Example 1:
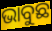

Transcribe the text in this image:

ଭାବୁଛ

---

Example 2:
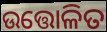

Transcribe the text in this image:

ଉତ୍ତୋଳିତ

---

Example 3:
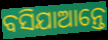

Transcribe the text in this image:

ବସିଯାଆନ୍ତେ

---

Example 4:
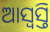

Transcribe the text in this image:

ଆସ୍ୱସ୍ତି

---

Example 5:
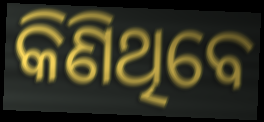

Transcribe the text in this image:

କିଣିଥିବେ